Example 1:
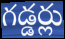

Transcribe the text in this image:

గడ్డర్లు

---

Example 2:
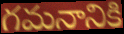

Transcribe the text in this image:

గమనానికి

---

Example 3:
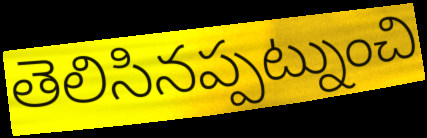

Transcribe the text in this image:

తెలిసినప్పట్నుంచి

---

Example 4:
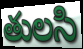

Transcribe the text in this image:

తులసి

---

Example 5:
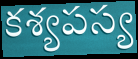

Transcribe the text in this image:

కశ్యపస్య